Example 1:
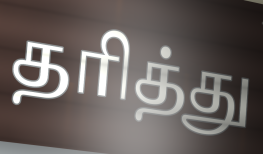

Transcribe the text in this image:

தரித்து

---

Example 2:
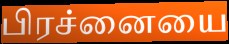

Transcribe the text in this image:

பிரச்னையை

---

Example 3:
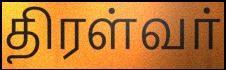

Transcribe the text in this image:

திரள்வர்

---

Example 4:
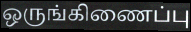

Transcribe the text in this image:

ஒருங்கிணைப்பு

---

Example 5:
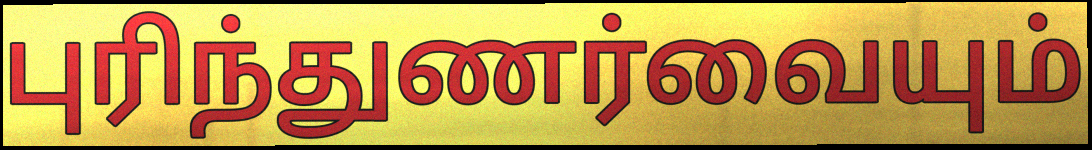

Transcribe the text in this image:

புரிந்துணர்வையும்